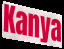
Kanya